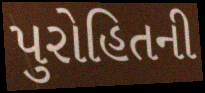
પુરોહિતની